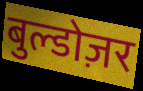
बुल्डोज़र